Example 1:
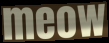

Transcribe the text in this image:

meow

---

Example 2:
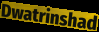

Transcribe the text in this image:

Dwatrinshad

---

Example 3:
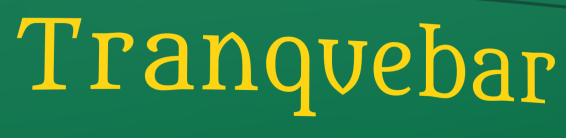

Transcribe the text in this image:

Tranquebar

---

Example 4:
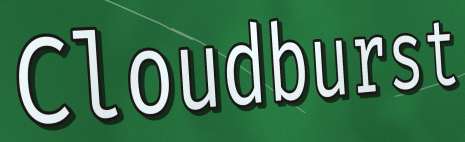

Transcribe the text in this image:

Cloudburst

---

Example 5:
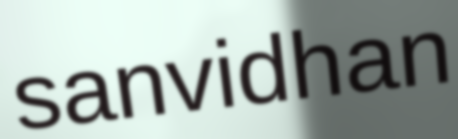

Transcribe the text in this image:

sanvidhan